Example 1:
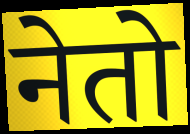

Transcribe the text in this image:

नेतो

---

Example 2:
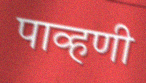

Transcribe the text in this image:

पाव्हणी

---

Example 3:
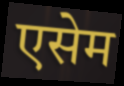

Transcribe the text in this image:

एसेम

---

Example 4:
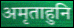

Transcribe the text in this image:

अमृताहुनि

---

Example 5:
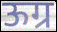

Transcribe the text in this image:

ऊग्र